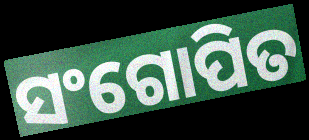
ସଂଗୋପିତ